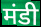
मंडी